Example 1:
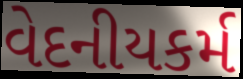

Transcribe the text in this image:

વેદનીયકર્મ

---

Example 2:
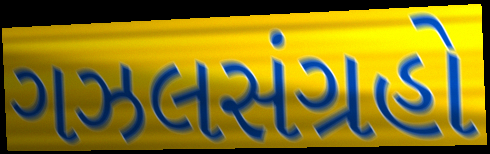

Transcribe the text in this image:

ગઝલસંગ્રહો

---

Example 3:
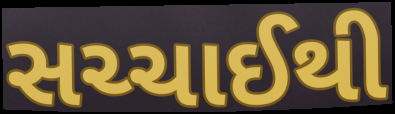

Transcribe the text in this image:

સચ્ચાઈથી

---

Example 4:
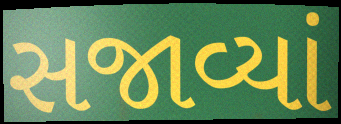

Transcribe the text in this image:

સજાવ્યાં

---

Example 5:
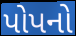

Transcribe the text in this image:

પોપનો